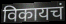
विकायचं